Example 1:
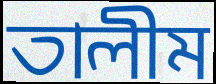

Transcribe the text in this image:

তালীম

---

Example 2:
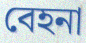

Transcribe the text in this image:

বেহনা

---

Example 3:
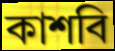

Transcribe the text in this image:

কাশবি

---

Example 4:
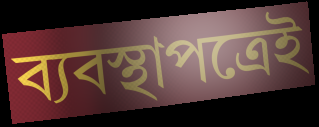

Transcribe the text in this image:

ব্যবস্থাপত্রেই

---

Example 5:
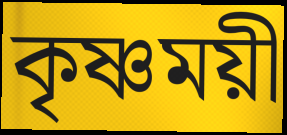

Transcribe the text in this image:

কৃষ্ণময়ী